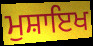
ਮੁਸ਼ਾਇਖ